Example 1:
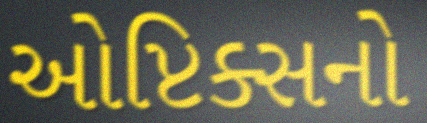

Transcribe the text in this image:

ઓપ્ટિક્સનો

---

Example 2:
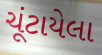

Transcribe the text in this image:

ચૂંટાયેલા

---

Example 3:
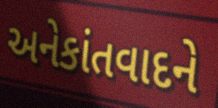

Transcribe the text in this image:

અનેકાંતવાદને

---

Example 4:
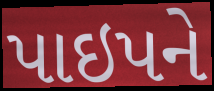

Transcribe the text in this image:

પાઇપને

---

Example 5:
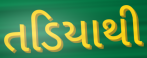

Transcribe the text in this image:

તડિયાથી